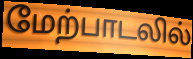
மேற்பாடலில்